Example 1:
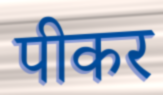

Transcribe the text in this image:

पीकर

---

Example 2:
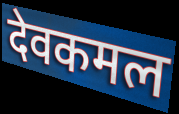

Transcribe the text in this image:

देवकमल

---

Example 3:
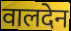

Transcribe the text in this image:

वालदेन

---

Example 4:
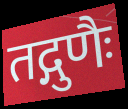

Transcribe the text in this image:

तद्गुणैः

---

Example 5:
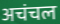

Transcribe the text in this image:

अचंचल